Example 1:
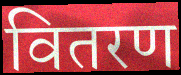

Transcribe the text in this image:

वितरण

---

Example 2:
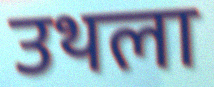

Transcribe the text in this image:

उथला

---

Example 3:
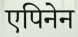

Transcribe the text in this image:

एपिनेन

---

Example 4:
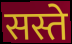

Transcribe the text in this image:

सस्ते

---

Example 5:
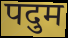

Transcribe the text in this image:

पदुम